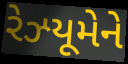
રેઝ્યૂમેને